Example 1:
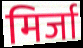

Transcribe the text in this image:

मिर्जा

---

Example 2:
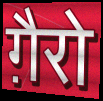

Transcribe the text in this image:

ग़ैरो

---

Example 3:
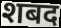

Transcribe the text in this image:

शबद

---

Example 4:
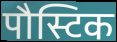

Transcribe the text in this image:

पौस्टिक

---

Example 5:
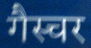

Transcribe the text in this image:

गैस्चर